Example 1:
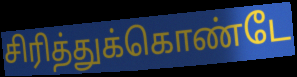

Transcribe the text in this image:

சிரித்துக்கொண்டே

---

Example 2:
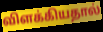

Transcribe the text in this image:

விளக்கியதால்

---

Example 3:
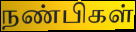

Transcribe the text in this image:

நண்பிகள்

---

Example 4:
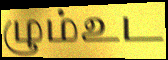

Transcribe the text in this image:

ழும்உட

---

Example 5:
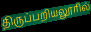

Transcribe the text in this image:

திருப்பறியலூரில்